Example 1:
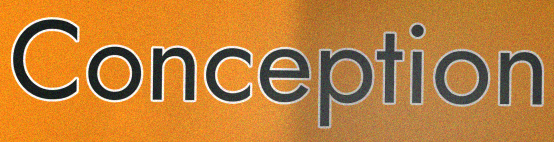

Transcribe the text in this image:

Conception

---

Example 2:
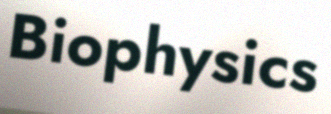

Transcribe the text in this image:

Biophysics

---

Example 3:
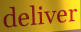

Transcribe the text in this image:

deliver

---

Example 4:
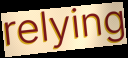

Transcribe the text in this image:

relying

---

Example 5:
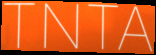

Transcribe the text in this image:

TNTA